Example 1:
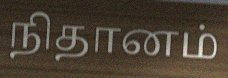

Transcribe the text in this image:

நிதானம்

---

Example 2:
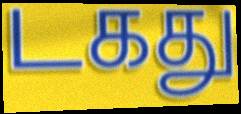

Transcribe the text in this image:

டகது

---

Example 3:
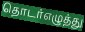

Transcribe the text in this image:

தொடர்எழுத்து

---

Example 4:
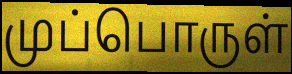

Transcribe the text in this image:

முப்பொருள்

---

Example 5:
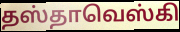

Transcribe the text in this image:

தஸ்தாவெஸ்கி